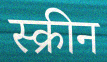
स्क्रीन